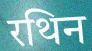
रथिन